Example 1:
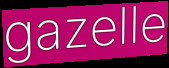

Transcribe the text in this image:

gazelle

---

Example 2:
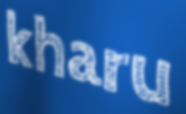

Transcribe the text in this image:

kharu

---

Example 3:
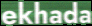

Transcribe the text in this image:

ekhada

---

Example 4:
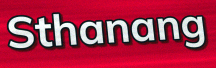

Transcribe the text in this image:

Sthanang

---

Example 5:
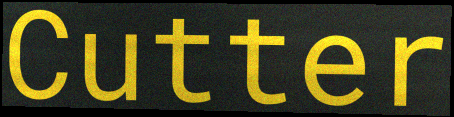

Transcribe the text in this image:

Cutter